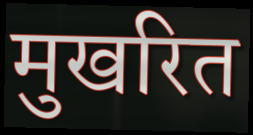
मुखरित